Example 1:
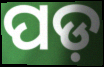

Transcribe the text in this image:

ପଡ଼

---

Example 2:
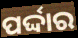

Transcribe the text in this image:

ପର୍ଦ୍ଦାର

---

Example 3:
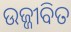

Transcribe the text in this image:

ଉଜ୍ଜୀବିତ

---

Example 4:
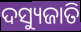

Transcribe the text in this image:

ଦସ୍ୟୁଜାତି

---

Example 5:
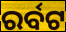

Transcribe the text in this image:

ରର୍ବଟ